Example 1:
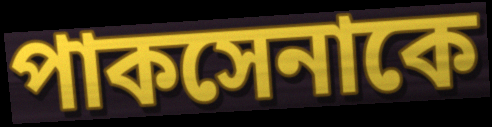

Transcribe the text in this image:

পাকসেনাকে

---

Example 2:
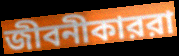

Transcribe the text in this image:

জীবনীকাররা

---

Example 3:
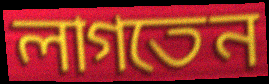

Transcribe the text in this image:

লাগতেন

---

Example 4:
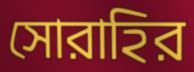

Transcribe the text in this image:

সোরাহির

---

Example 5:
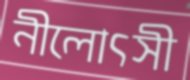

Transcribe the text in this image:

নীলোৎসী